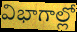
విభాగాల్లో